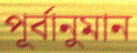
পূর্বানুমান